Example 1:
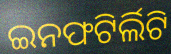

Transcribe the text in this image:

ଇନଫଟିର୍ଲିଟି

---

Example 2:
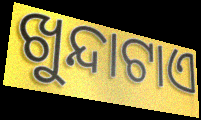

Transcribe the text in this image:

ଖୁନ୍ଦାଟାଏ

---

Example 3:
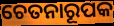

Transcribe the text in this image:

ଚେତନାରୂପକ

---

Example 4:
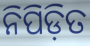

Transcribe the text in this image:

ନିପିଡ଼ିତ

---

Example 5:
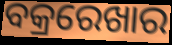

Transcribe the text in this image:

ବକ୍ରରେଖାର